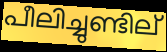
പീലിച്ചുണ്ടില്